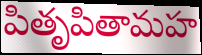
పితృపితామహ